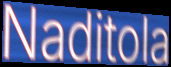
Naditola